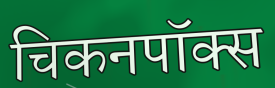
चिकनपॉक्स